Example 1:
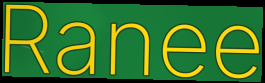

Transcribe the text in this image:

Ranee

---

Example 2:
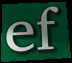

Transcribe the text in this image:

ef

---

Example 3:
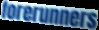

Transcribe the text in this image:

forerunners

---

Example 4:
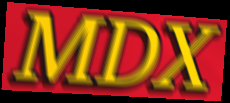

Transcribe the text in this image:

MDX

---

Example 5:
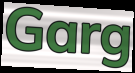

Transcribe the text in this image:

Garg